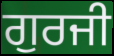
ਗੁਰਜੀ